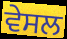
ਵੇਸਲ